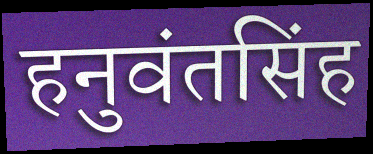
हनुवंतसिंह